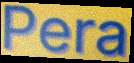
Pera